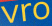
vro